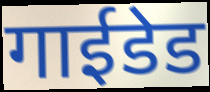
गाईडेड